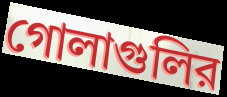
গোলাগুলির